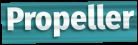
Propeller